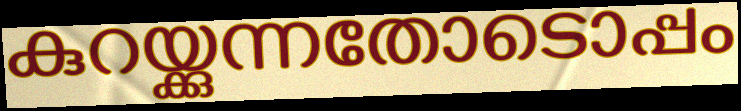
കുറയ്ക്കുന്നതോടൊപ്പം